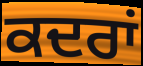
ਕਦਰਾਂ